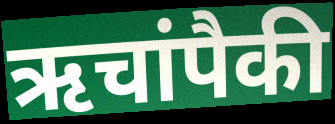
ऋचांपैकी